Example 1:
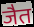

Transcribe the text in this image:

जैत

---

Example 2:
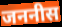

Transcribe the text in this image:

जननीस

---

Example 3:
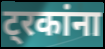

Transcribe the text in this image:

ट्रकांना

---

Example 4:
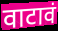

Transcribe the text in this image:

वाटावं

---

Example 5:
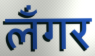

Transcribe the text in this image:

लँगर